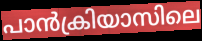
പാൻക്രിയാസിലെ